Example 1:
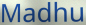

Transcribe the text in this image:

Madhu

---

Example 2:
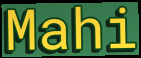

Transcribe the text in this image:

Mahi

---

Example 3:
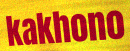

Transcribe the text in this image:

kakhono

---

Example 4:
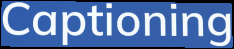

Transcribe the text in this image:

Captioning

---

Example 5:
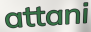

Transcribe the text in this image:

attani